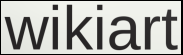
wikiart